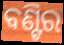
ବଣ୍ଟିର